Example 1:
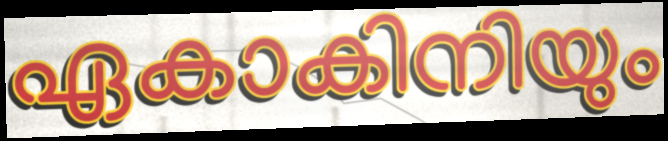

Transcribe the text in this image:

ഏകാകിനിയും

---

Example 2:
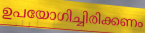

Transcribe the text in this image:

ഉപയോഗിച്ചിരിക്കണം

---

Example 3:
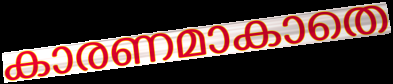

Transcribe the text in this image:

കാരണമാകാതെ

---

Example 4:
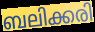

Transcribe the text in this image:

ബലിക്കരി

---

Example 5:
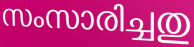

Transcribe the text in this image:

സംസാരിച്ചതു